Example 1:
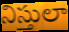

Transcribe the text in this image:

నిస్తులా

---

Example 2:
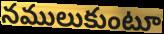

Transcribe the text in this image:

నములుకుంటూ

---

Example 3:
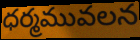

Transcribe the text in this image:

ధర్మమువలన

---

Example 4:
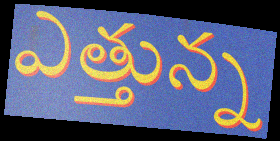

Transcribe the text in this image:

ఎత్తున్న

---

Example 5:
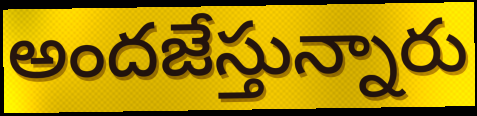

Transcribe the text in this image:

అందజేస్తున్నారు